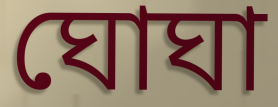
ঘোঘা